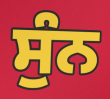
ਸੁੰਨ